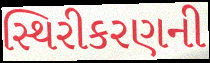
સ્થિરીકરણની